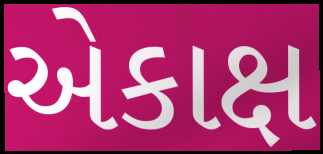
એકાક્ષ